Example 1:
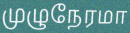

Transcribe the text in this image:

முழுநேரமா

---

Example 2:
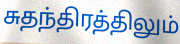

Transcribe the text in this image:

சுதந்திரத்திலும்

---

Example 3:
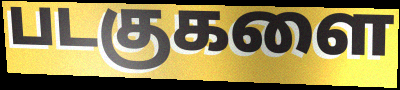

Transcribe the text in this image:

படகுகளை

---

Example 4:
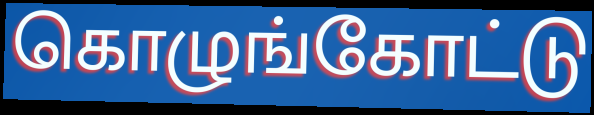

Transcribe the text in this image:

கொழுங்கோட்டு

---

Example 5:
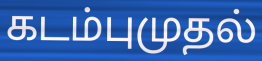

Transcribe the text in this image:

கடம்புமுதல்